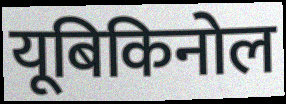
यूबिकिनोल